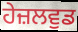
ਹੇਜ਼ਲਵੁਡ